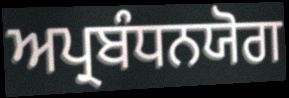
ਅਪ੍ਰਬੰਧਨਯੋਗ